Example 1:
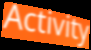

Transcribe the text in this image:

Activity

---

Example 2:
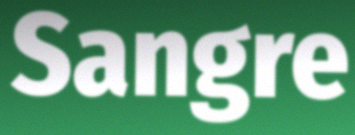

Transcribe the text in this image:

Sangre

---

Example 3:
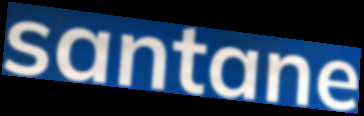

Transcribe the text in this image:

santane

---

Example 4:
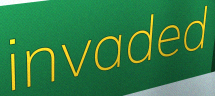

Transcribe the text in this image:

invaded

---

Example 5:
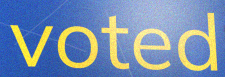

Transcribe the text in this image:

voted